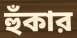
হুঁকার